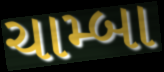
ચામ્બા